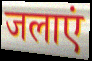
जलाएं